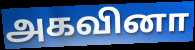
அகவினா